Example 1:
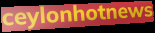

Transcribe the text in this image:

ceylonhotnews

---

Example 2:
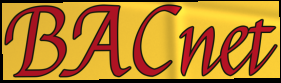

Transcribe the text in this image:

BACnet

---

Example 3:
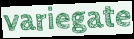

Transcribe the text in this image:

variegate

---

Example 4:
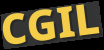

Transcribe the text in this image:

CGIL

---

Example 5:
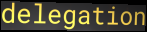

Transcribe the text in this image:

delegation